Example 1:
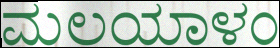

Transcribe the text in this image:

ಮಲಯಾಳಂ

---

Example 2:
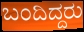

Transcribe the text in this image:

ಬಂದಿದ್ದರು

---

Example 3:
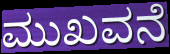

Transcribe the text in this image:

ಮುಖವನೆ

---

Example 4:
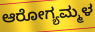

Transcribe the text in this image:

ಆರೋಗ್ಯಮ್ಮಳ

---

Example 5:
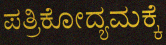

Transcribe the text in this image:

ಪತ್ರಿಕೋದ್ಯಮಕ್ಕೆ